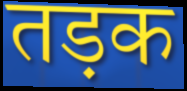
तड़क